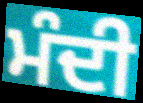
ਮੰਦੀ